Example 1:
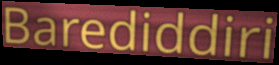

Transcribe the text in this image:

Barediddiri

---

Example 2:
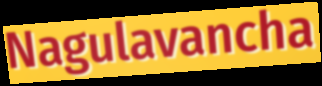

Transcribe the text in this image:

Nagulavancha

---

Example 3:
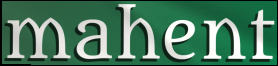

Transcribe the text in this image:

mahent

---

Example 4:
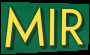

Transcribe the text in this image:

MIR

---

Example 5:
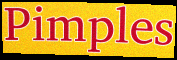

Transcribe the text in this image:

Pimples